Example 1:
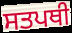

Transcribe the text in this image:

ਸਤਪਥੀ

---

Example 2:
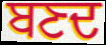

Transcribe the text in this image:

ਬਣਦ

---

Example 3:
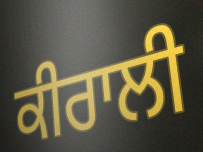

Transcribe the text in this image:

ਕੀਰਾਲੀ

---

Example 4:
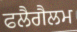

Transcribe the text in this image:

ਫਲੈਗੈਲਮ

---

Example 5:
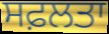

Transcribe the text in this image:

ਸਫ਼ਲਤਾ